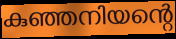
കുഞ്ഞനിയന്റെ